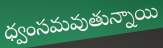
ధ్వంసమవుతున్నాయి